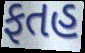
ફતહ